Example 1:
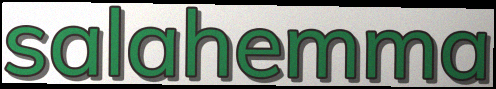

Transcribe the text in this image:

salahemma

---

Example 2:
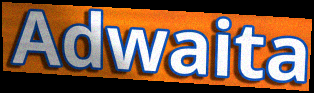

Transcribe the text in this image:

Adwaita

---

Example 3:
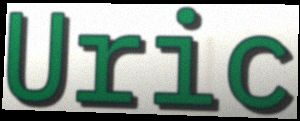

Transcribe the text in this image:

Uric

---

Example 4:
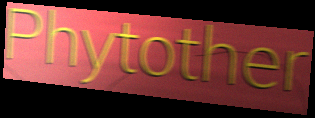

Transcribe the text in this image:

Phytother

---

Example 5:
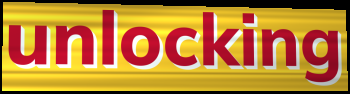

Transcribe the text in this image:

unlocking